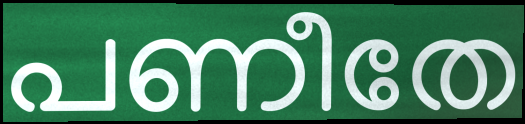
പണീതേ